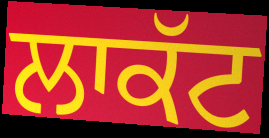
ਲਾਕੱਟ